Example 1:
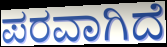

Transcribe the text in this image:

ಪರವಾಗಿದೆ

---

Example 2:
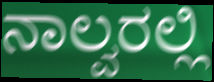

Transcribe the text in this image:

ನಾಲ್ವರಲ್ಲಿ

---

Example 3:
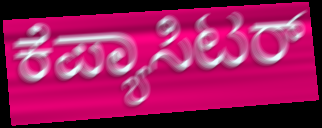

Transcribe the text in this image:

ಕೆಪ್ಯಾಸಿಟರ್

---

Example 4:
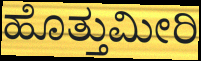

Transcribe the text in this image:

ಹೊತ್ತುಮೀರಿ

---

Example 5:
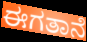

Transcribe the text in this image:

ಈಗತಾನೆ